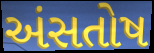
અંસતોષ